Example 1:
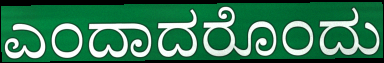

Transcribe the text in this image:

ಎಂದಾದರೊಂದು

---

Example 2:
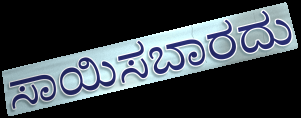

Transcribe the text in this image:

ಸಾಯಿಸಬಾರದು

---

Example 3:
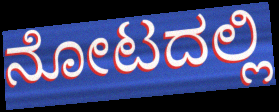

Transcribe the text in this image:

ನೋಟದಲ್ಲಿ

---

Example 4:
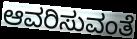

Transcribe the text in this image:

ಆವರಿಸುವಂತೆ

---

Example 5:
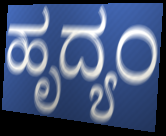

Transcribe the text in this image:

ಹೃದ್ಯಂ